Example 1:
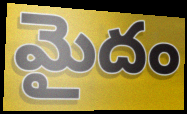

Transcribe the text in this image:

మైదం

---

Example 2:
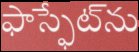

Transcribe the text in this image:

ఫాస్ఫేట్‌ను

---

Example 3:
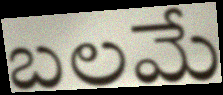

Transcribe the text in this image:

బలమే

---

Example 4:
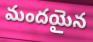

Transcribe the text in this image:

మందయైన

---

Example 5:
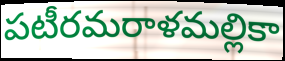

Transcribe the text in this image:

పటీరమరాళమల్లికా